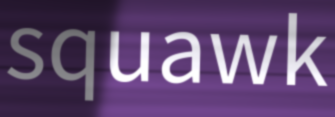
squawk